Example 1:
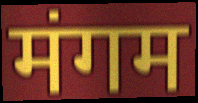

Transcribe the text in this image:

मंगम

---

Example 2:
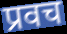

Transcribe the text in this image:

प्रवच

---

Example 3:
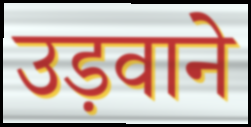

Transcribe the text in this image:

उड़वाने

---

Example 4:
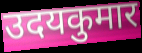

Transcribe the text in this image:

उदयकुमार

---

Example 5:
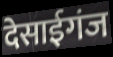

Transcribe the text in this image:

देसाईगंज